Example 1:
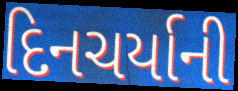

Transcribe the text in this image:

દિનચર્યાની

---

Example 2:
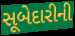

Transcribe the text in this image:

સૂબેદારીની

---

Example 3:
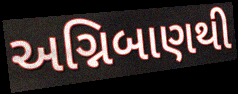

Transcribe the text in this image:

અગ્નિબાણથી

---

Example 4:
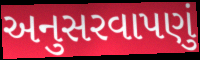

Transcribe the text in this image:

અનુસરવાપણું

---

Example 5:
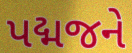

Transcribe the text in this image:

પદ્મજને